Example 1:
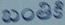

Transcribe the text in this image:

బంతికి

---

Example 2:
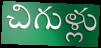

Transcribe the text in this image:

చిగుళ్లు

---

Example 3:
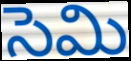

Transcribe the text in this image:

సెమి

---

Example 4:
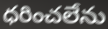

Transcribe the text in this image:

ధరించలేను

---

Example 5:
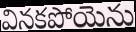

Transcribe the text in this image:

వినకపోయెను